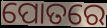
ପୋତରେ